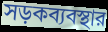
সড়কব্যবস্থার